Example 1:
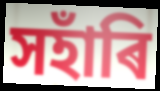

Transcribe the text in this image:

সহাঁৰি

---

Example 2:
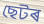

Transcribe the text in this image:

ছেটৰ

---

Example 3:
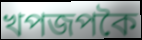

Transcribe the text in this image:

খপজপকৈ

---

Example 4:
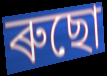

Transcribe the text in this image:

ৰুছো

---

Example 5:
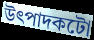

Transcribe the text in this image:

উৎপাদকটো